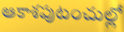
ఆకాశపుటంచుల్లో